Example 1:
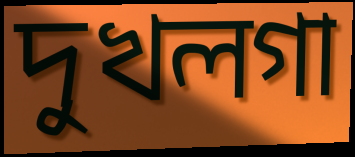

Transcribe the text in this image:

দুখলগা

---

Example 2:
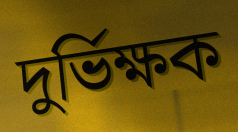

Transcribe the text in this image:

দুৰ্ভিক্ষক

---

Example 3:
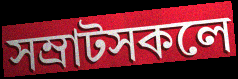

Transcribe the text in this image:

সম্ৰাটসকলে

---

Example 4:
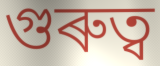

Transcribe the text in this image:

গুৰুত্ব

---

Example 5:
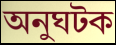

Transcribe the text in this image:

অনুঘটক